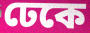
ঢেকে